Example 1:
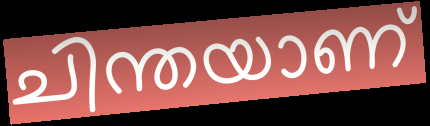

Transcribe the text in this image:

ചിന്തയാണ്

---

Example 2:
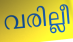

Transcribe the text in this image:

വരില്ലീ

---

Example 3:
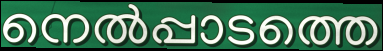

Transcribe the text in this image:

നെൽപ്പാടത്തെ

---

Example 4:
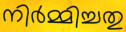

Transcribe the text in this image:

നിർമ്മിച്ചതു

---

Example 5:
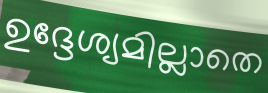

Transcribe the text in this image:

ഉദ്ദേശ്യമില്ലാതെ